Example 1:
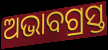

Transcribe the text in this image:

ଅଭାବଗ୍ରସ୍ତ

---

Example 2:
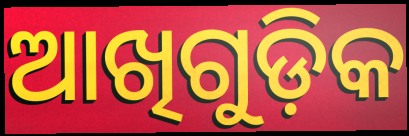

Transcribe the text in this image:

ଆଖିଗୁଡ଼ିକ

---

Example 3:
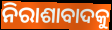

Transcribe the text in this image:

ନିରାଶାବାଦକୁ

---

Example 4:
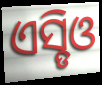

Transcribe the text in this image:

ଏସ୍ଡିଓ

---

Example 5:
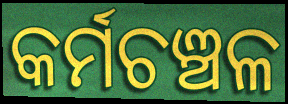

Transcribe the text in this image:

କର୍ମଚଞ୍ଚଳ